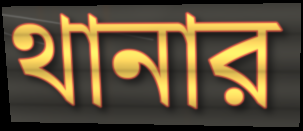
থানার